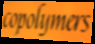
copolymers